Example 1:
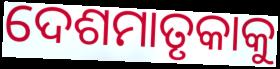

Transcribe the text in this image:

ଦେଶମାତୃକାକୁ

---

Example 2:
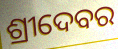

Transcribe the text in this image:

ଶ୍ରୀଦେବର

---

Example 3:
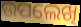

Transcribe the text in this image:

ଉପଲେଖି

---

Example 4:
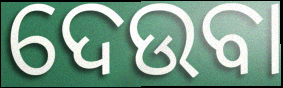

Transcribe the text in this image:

ଦେଉବା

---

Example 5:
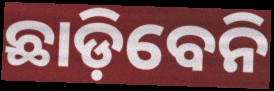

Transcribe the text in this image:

ଛାଡ଼ିବେନି